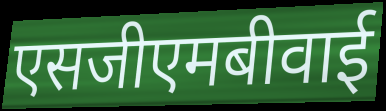
एसजीएमबीवाई